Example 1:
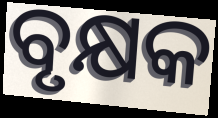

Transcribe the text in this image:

ବୃକ୍ଷକ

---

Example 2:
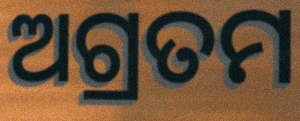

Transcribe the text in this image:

ଅଗ୍ରତମ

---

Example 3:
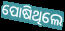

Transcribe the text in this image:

ପୋଷିଥିଲେ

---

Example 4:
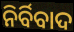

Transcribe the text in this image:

ନିର୍ବିବାଦ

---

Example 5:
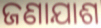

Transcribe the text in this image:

ଜଣାଯାଶ